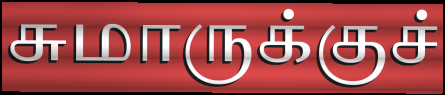
சுமாருக்குச்